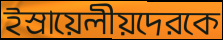
ইস্রায়েলীয়দেরকে